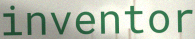
inventor